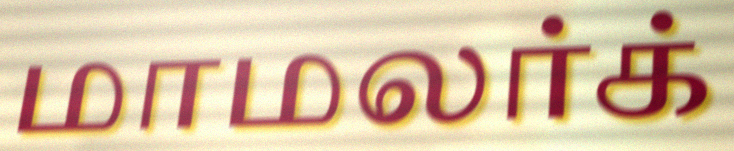
மாமலர்க்